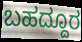
ಬಹದ್ದೂರ